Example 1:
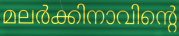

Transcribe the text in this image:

മലർക്കിനാവിന്റെ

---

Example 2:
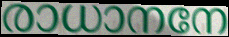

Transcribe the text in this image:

രാധാനനേ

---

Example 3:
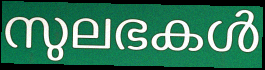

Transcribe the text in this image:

സുലഭകൾ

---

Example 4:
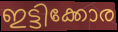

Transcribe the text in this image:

ഇട്ടിക്കോര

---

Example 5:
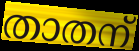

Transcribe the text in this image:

താതന്